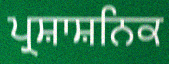
ਪ੍ਰਸ਼ਾਸ਼ਨਿਕ